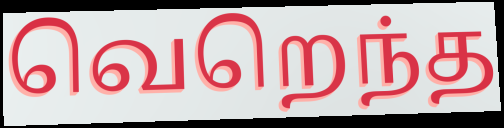
வெறெந்த